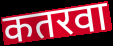
कतरवा